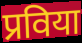
प्रविया